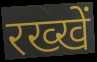
रख्खें